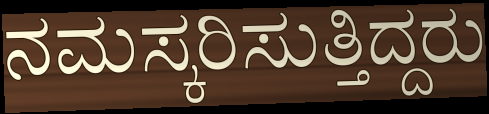
ನಮಸ್ಕರಿಸುತ್ತಿದ್ದರು